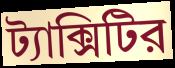
ট্যাক্সিটির